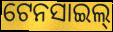
ଟେନସାଇଲ୍